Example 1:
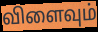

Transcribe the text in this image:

விளைவும்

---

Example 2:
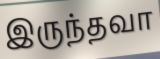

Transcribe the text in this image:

இருந்தவா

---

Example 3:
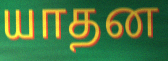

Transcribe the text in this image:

யாதன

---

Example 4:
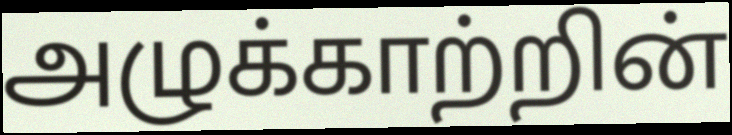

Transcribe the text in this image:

அழுக்காற்றின்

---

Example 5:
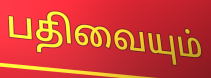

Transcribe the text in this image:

பதிவையும்